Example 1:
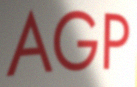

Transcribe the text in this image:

AGP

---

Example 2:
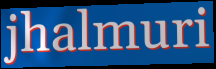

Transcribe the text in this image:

jhalmuri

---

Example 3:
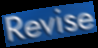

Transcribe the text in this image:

Revise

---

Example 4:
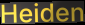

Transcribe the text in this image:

Heiden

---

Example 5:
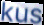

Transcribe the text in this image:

kus